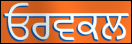
ਓਰਵਕਲ